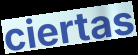
ciertas